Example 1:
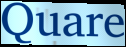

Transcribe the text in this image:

Quare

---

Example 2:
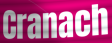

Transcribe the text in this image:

Cranach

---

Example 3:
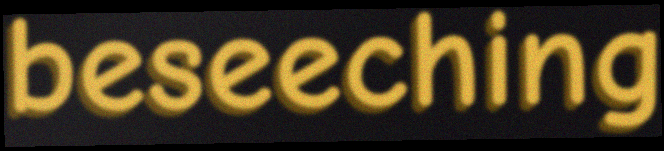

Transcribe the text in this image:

beseeching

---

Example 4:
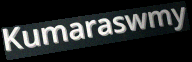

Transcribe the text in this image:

Kumaraswmy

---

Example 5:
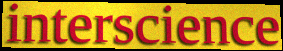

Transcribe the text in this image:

interscience